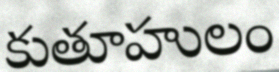
కుతూహులం